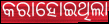
କରାହୋଇଥିଲା